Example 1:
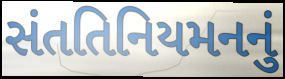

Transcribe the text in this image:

સંતતિનિયમનનું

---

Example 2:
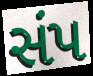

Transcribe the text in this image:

સંપ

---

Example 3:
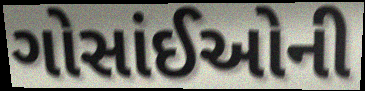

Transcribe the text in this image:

ગોસાંઈઓની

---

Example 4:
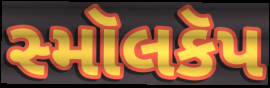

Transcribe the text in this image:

સ્મૉલકૅપ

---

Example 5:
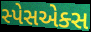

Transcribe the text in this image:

સ્પેસએક્સ